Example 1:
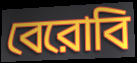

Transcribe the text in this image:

বেরোবি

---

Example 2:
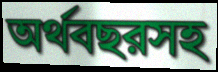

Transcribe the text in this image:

অর্থবছরসহ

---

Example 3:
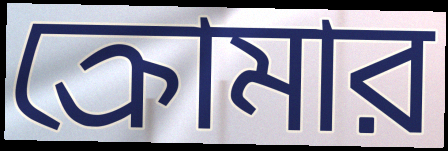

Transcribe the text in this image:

ক্রোমার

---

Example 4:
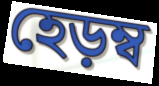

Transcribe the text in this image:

হেড়ম্ব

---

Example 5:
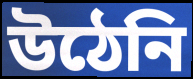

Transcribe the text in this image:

উঠেনি